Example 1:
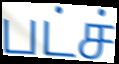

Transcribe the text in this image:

பட்ச்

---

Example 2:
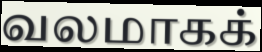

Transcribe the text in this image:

வலமாகக்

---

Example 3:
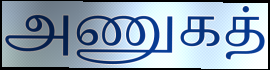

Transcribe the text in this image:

அணுகத்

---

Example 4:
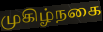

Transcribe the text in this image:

முகிழ்நகை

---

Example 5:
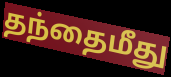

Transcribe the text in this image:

தந்தைமீது